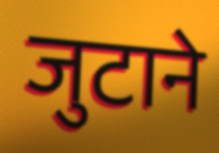
जुटाने